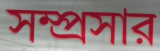
সম্প্রসার